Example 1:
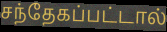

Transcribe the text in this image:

சந்தேகப்பட்டால்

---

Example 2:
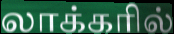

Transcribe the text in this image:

லாக்கரில்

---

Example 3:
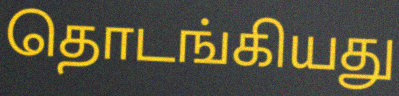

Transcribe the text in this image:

தொடங்கியது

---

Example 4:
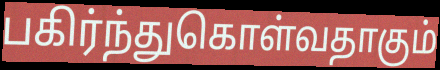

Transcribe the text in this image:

பகிர்ந்துகொள்வதாகும்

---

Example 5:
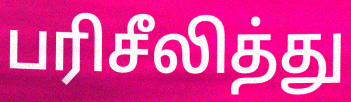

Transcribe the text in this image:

பரிசீலித்து